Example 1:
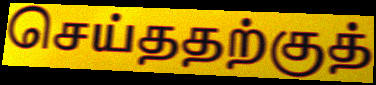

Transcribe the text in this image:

செய்ததற்குத்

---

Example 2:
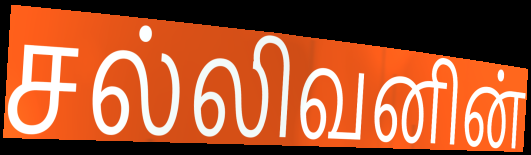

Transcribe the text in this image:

சல்லிவனின்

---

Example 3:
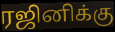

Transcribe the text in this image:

ரஜினிக்கு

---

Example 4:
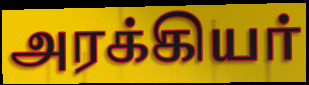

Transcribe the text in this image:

அரக்கியர்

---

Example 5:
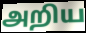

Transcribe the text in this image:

அறிய